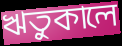
ঋতুকালে